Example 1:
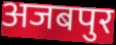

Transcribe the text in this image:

अजबपुर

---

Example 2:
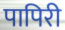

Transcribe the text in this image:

पापिरी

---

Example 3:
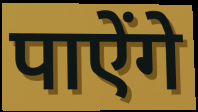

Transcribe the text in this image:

पाऐंगे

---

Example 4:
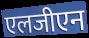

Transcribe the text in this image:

एलजीएन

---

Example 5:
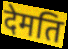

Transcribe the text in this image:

देमति